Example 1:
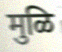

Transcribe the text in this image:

मुळि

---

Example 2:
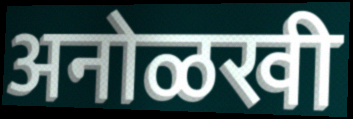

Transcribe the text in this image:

अनोळखी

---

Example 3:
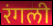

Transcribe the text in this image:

रंगली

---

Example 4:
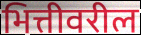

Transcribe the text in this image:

भित्तीवरील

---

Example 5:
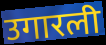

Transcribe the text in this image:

उगारली